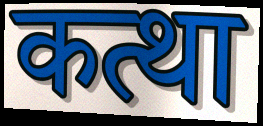
कत्था